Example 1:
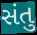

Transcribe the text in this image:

સંતુ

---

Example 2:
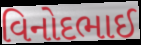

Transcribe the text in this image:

વિનોદભાઈ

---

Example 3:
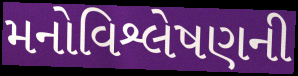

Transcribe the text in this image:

મનોવિશ્લેષણની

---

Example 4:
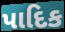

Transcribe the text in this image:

પાદિક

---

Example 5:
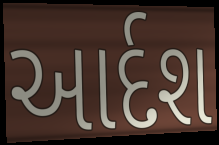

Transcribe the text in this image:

આર્દશ